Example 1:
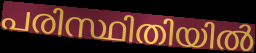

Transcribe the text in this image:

പരിസ്ഥിതിയിൽ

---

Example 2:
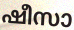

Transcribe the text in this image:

ഷീസാ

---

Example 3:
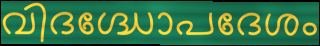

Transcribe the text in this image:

വിദഗ്ദ്ധോപദേശം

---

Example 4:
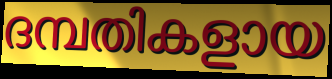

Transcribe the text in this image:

ദമ്പതികളായ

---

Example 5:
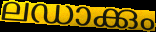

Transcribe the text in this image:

ലഡാക്കും